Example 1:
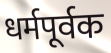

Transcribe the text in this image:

धर्मपूर्वक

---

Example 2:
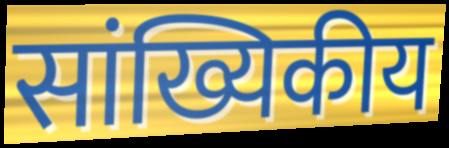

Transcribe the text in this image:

सांख्यिकीय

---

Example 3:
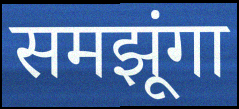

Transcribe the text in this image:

समझूंगा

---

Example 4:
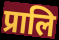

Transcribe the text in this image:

प्रालि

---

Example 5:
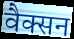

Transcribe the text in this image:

वैक्सन